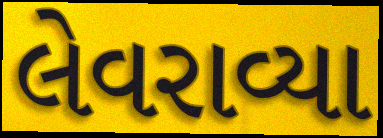
લેવરાવ્યા